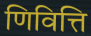
णिवित्ति